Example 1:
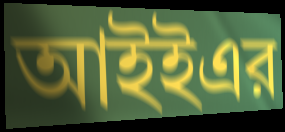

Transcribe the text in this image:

আইইএর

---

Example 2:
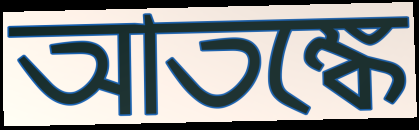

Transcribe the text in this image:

আতঙ্কে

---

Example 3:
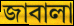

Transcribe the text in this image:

জাবালা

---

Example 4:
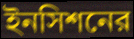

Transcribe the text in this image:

ইনসিশনের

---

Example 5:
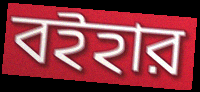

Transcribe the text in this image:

বইহার